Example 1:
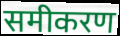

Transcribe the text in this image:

समीकरण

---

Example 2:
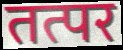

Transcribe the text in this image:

तत्‍पर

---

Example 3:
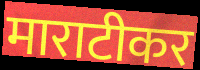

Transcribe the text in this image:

माराटीकर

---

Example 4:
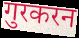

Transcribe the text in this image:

गुरकरन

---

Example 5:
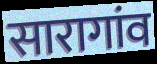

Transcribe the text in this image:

सारागांव